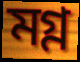
মগ্ন